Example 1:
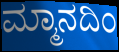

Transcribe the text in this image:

ಮ್ಮಾನದಿಂ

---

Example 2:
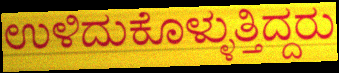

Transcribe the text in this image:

ಉಳಿದುಕೊಳ್ಳುತ್ತಿದ್ದರು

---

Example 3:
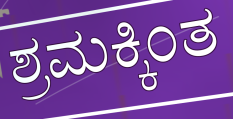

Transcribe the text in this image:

ಶ್ರಮಕ್ಕಿಂತ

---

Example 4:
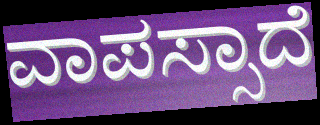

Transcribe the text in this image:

ವಾಪಸ್ಸಾದೆ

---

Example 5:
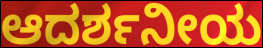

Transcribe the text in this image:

ಆದರ್ಶನೀಯ